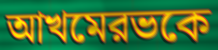
আখমেরভকে